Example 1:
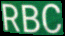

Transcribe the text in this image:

RBC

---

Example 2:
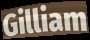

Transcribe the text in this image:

Gilliam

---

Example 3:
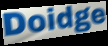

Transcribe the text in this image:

Doidge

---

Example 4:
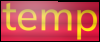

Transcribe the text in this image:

temp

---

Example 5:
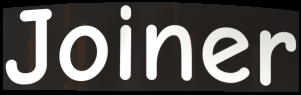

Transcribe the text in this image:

Joiner